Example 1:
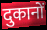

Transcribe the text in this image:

दुकानों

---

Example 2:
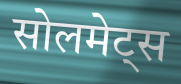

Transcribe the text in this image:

सोलमेट्स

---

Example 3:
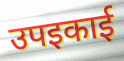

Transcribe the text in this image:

उपइकाई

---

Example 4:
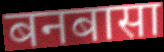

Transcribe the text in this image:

बनबासा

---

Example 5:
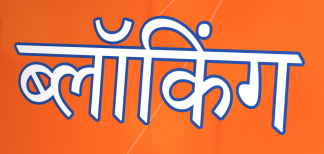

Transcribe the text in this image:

ब्लॉकिंग